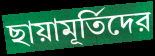
ছায়ামূর্তিদের